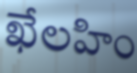
ఖేలహిం